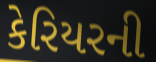
કેરિયરની